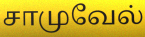
சாமுவேல்